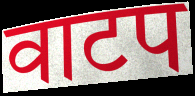
वाटप